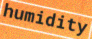
humidity